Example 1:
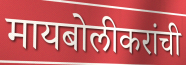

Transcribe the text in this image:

मायबोलीकरांची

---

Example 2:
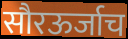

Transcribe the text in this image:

सौरऊर्जाच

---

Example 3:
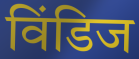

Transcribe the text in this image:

विंडिज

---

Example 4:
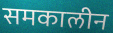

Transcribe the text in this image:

समकालीन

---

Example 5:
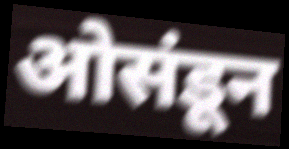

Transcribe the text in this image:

ओसंडून